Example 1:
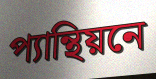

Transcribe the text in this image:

প্যান্থিয়নে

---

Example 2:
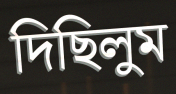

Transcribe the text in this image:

দিছিলুম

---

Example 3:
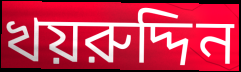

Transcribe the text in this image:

খয়রুদ্দিন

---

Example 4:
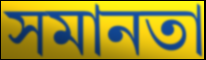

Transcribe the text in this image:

সমানতা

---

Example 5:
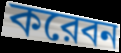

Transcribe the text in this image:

করেবন